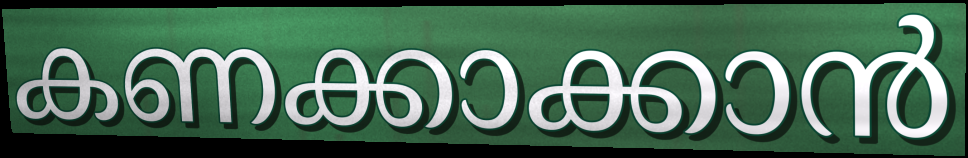
കണക്കാക്കാൻ